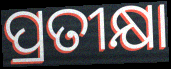
ପ୍ରତୀକ୍ଷା